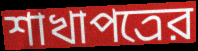
শাখাপত্রের